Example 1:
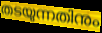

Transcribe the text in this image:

തടയുന്നതിനും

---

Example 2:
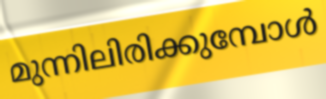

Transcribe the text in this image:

മുന്നിലിരിക്കുമ്പോൾ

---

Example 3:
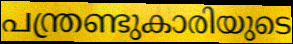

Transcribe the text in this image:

പന്ത്രണ്ടുകാരിയുടെ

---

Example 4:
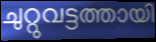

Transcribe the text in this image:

ചുറ്റുവട്ടത്തായി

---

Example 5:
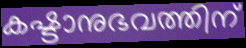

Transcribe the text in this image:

കഷ്ടാനുഭവത്തിന്